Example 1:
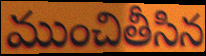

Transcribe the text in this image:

ముంచితీసిన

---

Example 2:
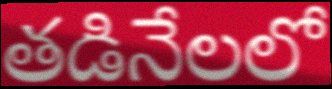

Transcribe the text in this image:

తడినేలలో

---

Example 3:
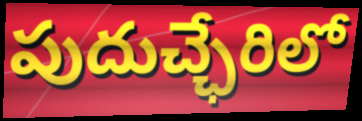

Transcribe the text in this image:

పుదుచ్ఛేరిలో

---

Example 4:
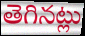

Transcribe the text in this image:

తెగినట్లు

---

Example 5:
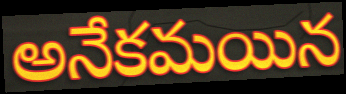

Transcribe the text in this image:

అనేకమయిన